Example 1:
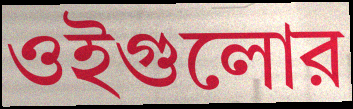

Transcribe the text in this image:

ওইগুলোর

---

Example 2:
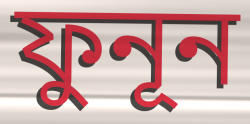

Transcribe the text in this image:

ফুনূন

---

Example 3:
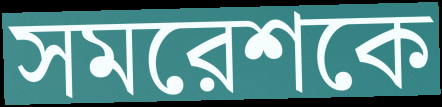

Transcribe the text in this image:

সমরেশকে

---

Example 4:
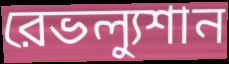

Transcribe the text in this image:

রেভল্যুশান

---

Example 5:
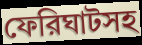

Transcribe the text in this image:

ফেরিঘাটসহ